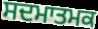
ਸਦਮਾਤਮਕ